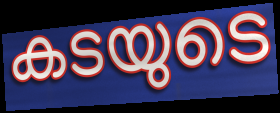
കടയുടെ